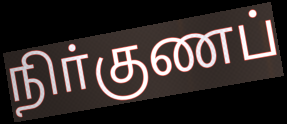
நிர்குணப்